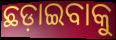
ଛଡ଼ାଇବାକୁ